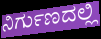
ನಿರ್ಗುಣದಲ್ಲಿ